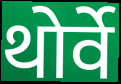
थोर्वे